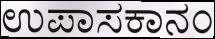
ಉಪಾಸಕಾನಂ